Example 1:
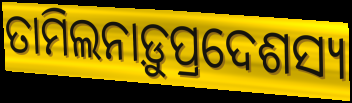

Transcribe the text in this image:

ତାମିଲନାଡ଼ୁପ୍ରଦେଶସ୍ୟ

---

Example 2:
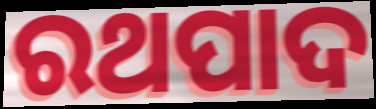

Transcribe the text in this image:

ରଥପାଦ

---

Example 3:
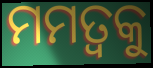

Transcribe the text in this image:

ମମତ୍ୱକୁ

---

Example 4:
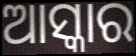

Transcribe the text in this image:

ଆସ୍କାର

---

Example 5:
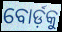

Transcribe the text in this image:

ବୋର୍ଡ଼କୁ